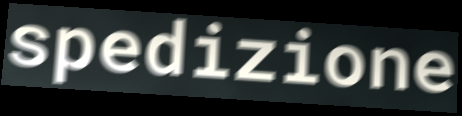
spedizione